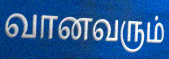
வானவரும்